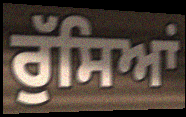
ਰੁੱਸਿਆਂ